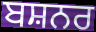
ਬਸ਼ਨਰ